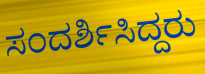
ಸಂದರ್ಶಿಸಿದ್ದರು